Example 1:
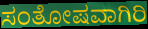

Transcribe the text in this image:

ಸಂತೋಷವಾಗಿರಿ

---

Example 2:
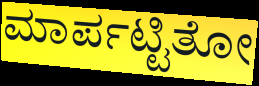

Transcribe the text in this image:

ಮಾರ್ಪಟ್ಟಿತೋ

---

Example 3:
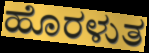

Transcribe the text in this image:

ಹೊರಳುತ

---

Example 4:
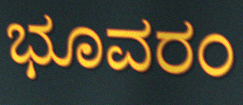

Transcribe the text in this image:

ಭೂವರಂ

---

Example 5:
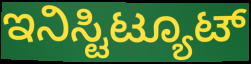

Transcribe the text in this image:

ಇನಿಸ್ಟಿಟ್ಯೂಟ್